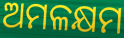
ଅମଳକ୍ଷମ